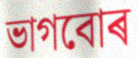
ভাগবোৰ